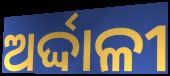
ଅର୍ଦ୍ଦାଳୀ